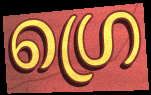
ഗ്രെ